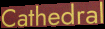
Cathedral